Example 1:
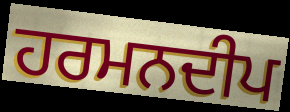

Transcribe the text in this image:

ਹਰਮਨਦੀਪ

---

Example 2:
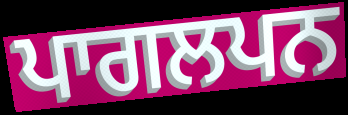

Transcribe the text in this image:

ਪਾਗਲਪਨ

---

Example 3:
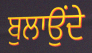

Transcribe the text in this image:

ਬੁਲਾਉਂਦੇ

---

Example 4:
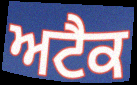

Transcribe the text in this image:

ਅਟੈਕ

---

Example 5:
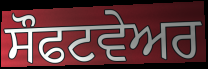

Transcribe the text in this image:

ਸੌਫਟਵੇਅਰ